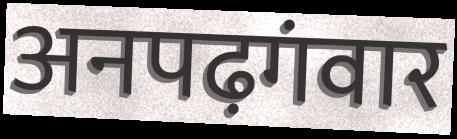
अनपढ़गंवार